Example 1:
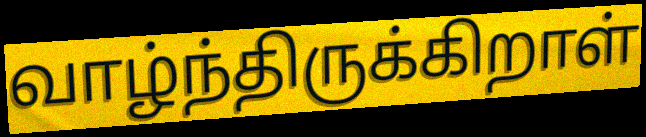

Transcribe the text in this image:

வாழ்ந்திருக்கிறாள்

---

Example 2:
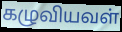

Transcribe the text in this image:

கழுவியவள்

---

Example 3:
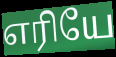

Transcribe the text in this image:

எரியே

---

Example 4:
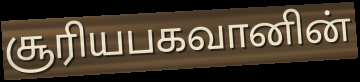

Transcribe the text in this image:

சூரியபகவானின்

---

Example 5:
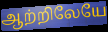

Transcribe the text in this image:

ஆற்றிலேயே